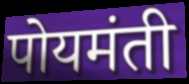
पोयमंती